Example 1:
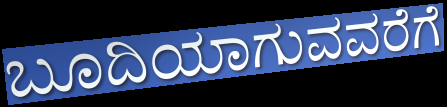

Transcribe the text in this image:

ಬೂದಿಯಾಗುವವರೆಗೆ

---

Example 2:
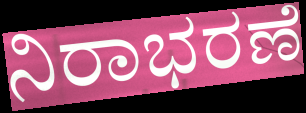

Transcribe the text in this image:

ನಿರಾಭರಣೆ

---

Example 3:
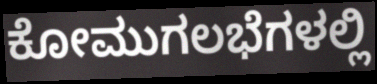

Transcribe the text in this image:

ಕೋಮುಗಲಭೆಗಳಲ್ಲಿ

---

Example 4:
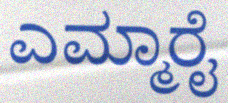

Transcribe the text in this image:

ಎಮ್ಮಾರೈ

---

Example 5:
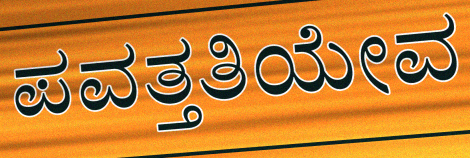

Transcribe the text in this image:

ಪವತ್ತತಿಯೇವ